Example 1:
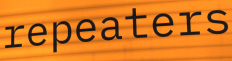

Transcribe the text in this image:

repeaters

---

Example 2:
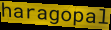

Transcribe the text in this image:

haragopal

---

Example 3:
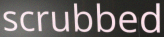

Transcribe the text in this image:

scrubbed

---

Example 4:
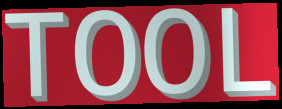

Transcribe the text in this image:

TOOL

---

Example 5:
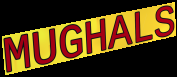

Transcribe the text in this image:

MUGHALS